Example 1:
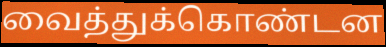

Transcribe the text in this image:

வைத்துக்கொண்டன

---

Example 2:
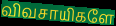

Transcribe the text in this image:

விவசாயிகளே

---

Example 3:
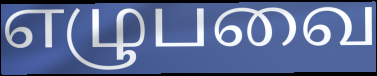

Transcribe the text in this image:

எழுபவை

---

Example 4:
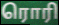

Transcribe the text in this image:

ரொரி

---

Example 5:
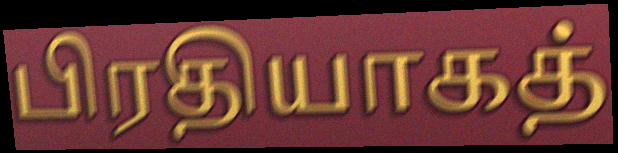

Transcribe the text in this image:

பிரதியாகத்